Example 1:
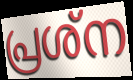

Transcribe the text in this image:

പ്രശ്‌ന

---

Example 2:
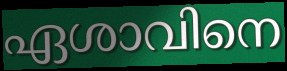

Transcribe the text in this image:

ഏശാവിനെ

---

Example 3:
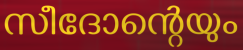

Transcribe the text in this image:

സീദോന്റെയും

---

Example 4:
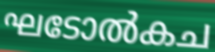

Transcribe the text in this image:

ഘടോൽകച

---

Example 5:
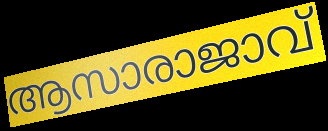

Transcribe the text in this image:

ആസാരാജാവ്